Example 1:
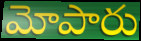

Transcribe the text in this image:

మోపారు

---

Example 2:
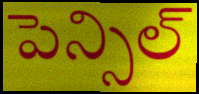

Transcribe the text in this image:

పెన్సిల్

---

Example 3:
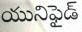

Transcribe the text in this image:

యునిఫైడ్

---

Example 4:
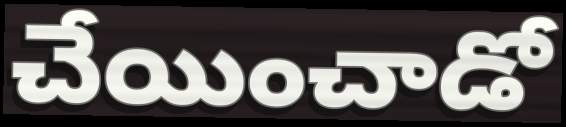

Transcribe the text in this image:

చేయించాడో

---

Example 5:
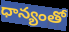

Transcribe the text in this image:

ధాన్యంతో